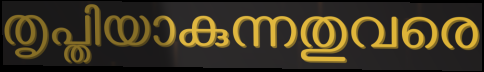
തൃപ്തിയാകുന്നതുവരെ